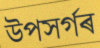
উপসৰ্গৰ